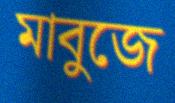
মাবুজে